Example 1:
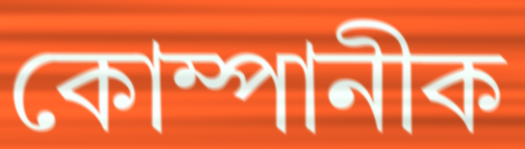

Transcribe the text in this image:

কোম্পানীক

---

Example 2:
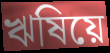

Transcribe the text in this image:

ঋষিয়ে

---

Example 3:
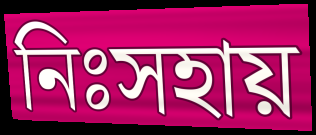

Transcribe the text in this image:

নিঃসহায়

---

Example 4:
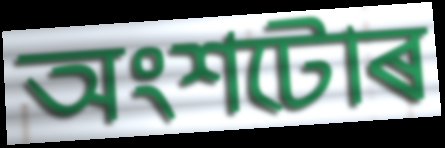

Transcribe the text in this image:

অংশটোৰ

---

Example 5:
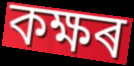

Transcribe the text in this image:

কক্ষৰ